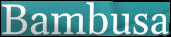
Bambusa